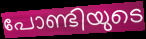
പോണ്ടിയുടെ